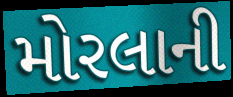
મોરલાની